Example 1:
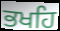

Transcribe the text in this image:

ਭਖਹਿ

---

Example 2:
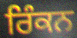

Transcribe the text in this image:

ਰਿੰਕਨ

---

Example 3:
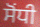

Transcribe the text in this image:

ਸੋਂਧੀ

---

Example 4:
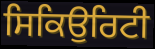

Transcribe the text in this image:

ਸਿਕਿਉਰਿਟੀ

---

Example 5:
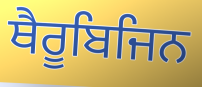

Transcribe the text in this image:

ਥੈਰੂਬਿਜਿਨ